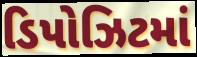
ડિપોઝિટમાં